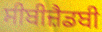
ਸੀਬੀਜ਼ੈਡਬੀ